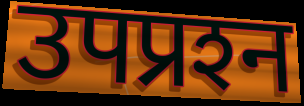
उपप्रश्‍न